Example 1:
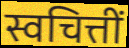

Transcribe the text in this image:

स्वचित्तीं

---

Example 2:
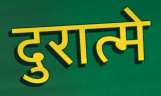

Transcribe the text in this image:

दुरात्मे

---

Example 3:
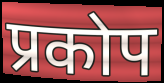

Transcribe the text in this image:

प्रकोप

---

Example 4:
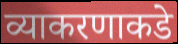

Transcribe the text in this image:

व्याकरणाकडे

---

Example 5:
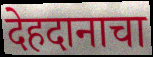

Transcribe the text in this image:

देहदानाचा